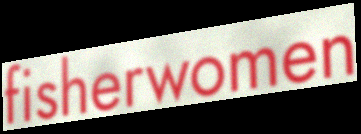
fisherwomen